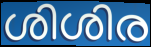
ശിശിര